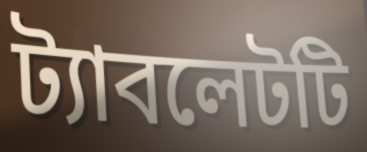
ট্যাবলেটটি